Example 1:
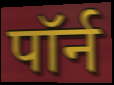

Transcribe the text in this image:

पॉर्न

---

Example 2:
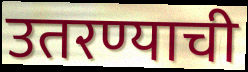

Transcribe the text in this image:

उतरण्याची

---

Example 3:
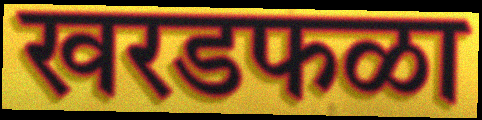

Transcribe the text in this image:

खरडफळा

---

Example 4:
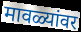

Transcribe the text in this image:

मावळ्यांवर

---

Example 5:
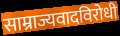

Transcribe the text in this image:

साम्राज्यवादविरोधी